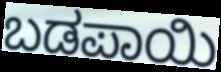
ಬಡಪಾಯಿ